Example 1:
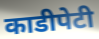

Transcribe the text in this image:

काडीपेटी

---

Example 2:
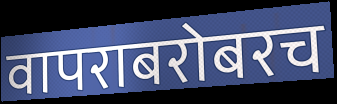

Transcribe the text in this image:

वापराबरोबरच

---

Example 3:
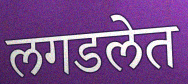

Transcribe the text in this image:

लगडलेत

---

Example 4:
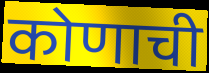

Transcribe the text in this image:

कोणाची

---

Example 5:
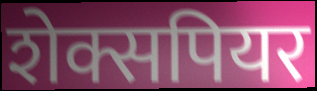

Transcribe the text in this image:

शेक्सपियर